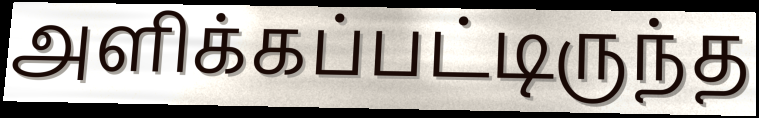
அளிக்கப்பட்டிருந்த